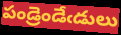
పండ్రెండేఁడులు